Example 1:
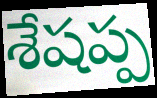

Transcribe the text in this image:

శేషప్ప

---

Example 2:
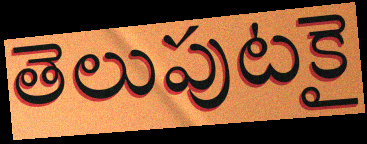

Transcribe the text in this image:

తెలుపుటకై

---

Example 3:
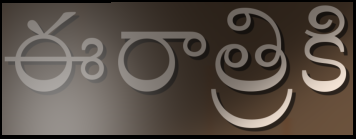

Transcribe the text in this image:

ఈరాత్రికి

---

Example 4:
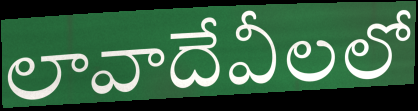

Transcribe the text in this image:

లావాదేవీలలో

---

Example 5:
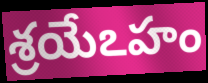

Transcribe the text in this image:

శ్రయేఽహం